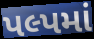
પલ્પમાં